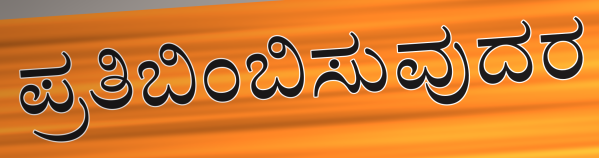
ಪ್ರತಿಬಿಂಬಿಸುವುದರ